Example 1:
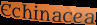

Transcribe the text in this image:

Echinacea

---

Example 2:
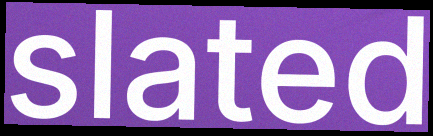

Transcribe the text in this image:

slated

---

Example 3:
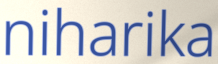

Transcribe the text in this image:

niharika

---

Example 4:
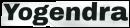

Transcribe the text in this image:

Yogendra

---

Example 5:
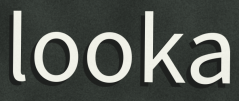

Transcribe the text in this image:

looka